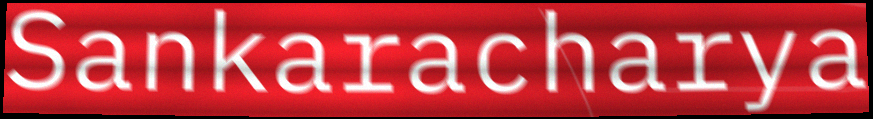
Sankaracharya